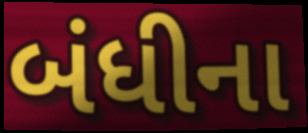
બંધીના